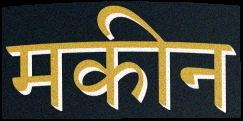
मकीन